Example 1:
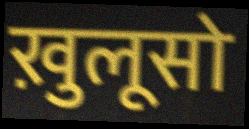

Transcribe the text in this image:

ख़ुलूसो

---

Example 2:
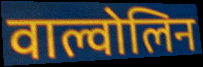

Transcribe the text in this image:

वाल्वोलिन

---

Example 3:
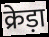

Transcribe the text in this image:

क्रेड़ा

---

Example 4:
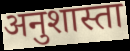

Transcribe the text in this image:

अनुशास्ता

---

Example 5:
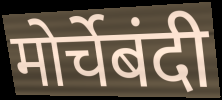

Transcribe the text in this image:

मोर्चेबंदी